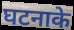
घटनाके